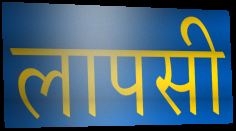
लापसी